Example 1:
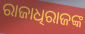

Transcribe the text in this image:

ରାଜାଧିରାଜଙ୍କ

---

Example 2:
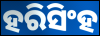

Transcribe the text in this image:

ହରିସିଂହ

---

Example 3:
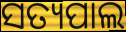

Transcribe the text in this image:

ସତ୍ୟପାଲ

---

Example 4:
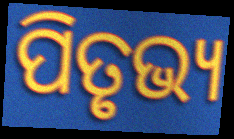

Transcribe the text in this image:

ପିତୃଭ୍ୟ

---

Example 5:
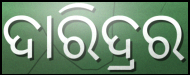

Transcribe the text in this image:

ଦାରିଦ୍ରର